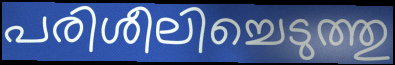
പരിശീലിച്ചെടുത്തു